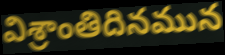
విశ్రాంతిదినమున